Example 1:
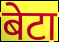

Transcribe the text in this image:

बेटा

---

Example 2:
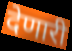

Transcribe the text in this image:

देणारी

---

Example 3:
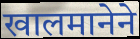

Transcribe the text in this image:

खालमानेने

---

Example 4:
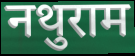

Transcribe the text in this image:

नथुराम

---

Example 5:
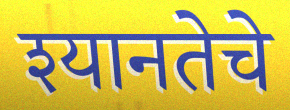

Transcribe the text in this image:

श्यानतेचे